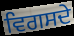
ਵਿਗਸਦੇ